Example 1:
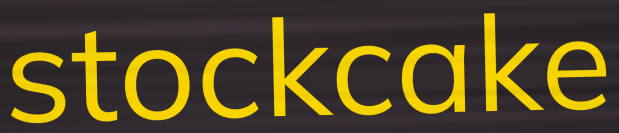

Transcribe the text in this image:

stockcake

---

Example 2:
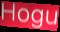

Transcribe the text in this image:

Hogu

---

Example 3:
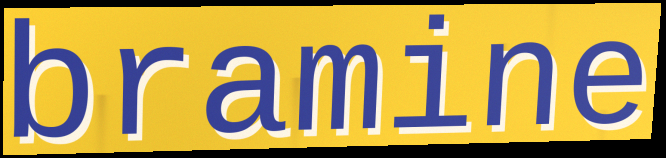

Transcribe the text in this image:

bramine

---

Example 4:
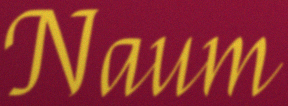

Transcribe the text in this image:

Naum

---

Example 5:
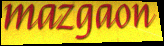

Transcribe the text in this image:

mazgaon